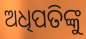
ଅଧିପତିଙ୍କୁ